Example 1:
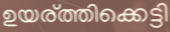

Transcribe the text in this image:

ഉയര്ത്തിക്കെട്ടി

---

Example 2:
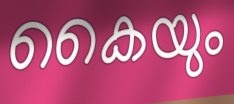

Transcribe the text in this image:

കൈയും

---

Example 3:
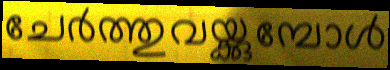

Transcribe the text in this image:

ചേർത്തുവയ്ക്കുമ്പോൾ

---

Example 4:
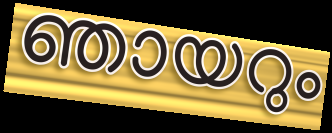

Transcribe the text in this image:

ഞായറും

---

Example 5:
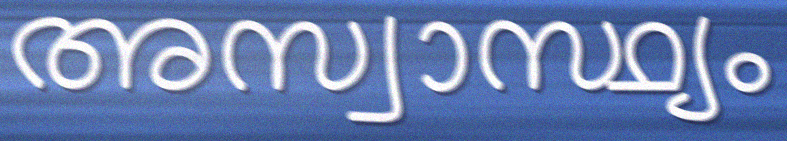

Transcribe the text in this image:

അസ്വാസ്ഥ്യം